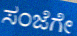
ಸಂಜೆಗೇ